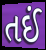
તઈં